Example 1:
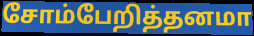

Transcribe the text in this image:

சோம்பேறித்தனமா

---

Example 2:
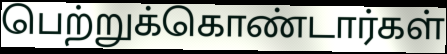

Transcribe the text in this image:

பெற்றுக்கொண்டார்கள்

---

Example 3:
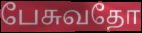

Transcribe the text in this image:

பேசுவதோ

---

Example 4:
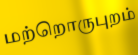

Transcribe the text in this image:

மற்றொருபுறம்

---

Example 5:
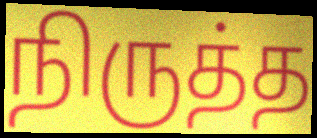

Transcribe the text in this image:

நிருத்த